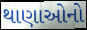
થાણાઓનો